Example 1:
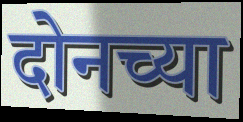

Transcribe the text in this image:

दोनच्या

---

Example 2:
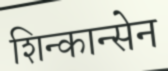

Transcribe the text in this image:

शिन्कान्सेन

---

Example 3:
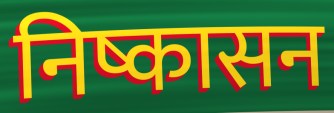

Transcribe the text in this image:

निष्कासन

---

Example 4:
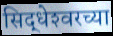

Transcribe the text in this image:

सिद्धेश्वरच्या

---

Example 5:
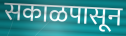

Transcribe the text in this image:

सकाळपासून